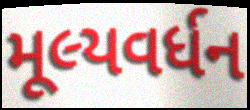
મૂલ્યવર્ધન